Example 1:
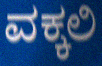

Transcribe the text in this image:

ವಕ್ಕಲಿ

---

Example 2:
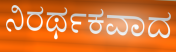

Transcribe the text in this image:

ನಿರರ್ಥಕವಾದ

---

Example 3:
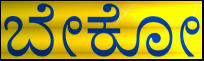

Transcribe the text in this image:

ಬೇಕೋ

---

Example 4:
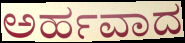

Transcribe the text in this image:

ಅರ್ಹವಾದ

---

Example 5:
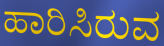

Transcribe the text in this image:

ಹಾರಿಸಿರುವ